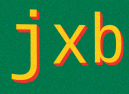
jxb